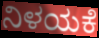
ನಿಳಯಕೆ